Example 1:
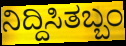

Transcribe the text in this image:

ನಿದ್ದಿಸಿತಬ್ಬಂ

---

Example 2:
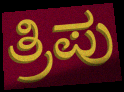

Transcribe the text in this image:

ತ್ರಿಪು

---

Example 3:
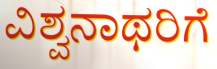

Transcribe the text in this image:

ವಿಶ್ವನಾಥರಿಗೆ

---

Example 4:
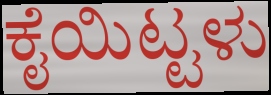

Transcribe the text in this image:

ಕೈಯಿಟ್ಟಳು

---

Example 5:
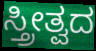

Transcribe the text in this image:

ಸ್ತ್ರೀತ್ವದ